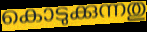
കൊടുക്കുന്നതു